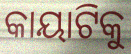
କାୟାଟିକୁ